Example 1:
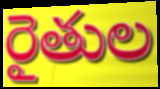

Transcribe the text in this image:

రైతుల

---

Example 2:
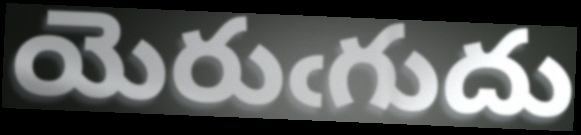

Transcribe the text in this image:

యెరుఁగుదు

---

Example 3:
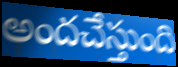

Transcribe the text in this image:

అందచేస్తుంది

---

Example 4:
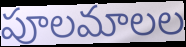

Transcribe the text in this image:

పూలమాలల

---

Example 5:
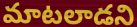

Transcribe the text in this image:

మాటలాడని